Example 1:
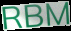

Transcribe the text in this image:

RBM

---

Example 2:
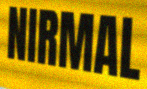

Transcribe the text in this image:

NIRMAL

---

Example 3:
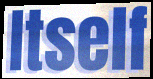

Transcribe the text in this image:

Itself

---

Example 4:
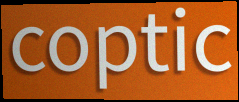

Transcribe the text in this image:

coptic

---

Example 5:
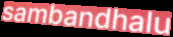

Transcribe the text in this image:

sambandhalu